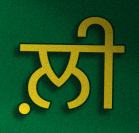
ਲ਼ੀ